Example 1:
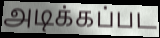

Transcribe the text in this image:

அடிக்கப்பட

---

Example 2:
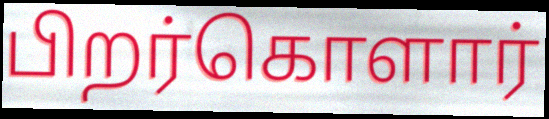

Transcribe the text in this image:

பிறர்கொளார்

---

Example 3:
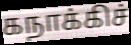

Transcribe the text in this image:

கநாக்கிச்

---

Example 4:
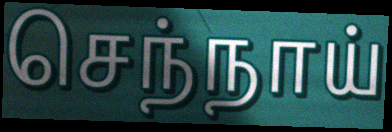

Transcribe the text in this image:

செந்நாய்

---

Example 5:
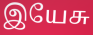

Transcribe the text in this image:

இயேசு